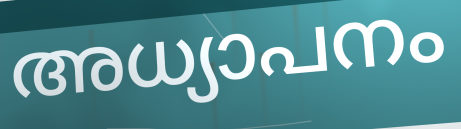
അധ്യാപനം